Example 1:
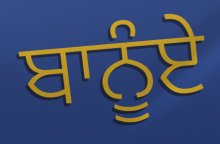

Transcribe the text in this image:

ਬਾਨੂੰਏ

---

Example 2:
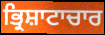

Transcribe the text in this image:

ਭ੍ਰਿਸ਼ਾਟਾਚਾਰ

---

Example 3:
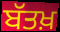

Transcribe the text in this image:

ਬੱਤਖ਼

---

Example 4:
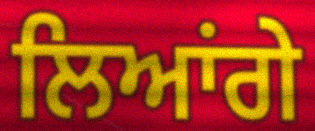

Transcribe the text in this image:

ਲਿਆਂਗੇ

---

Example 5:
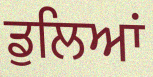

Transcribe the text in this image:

ਡੁਲਿਆਂ